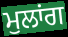
ਮੁਲਾਂਗ